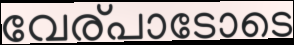
വേര്പാടോടെ